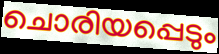
ചൊരിയപ്പെടും